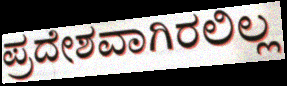
ಪ್ರದೇಶವಾಗಿರಲಿಲ್ಲ